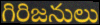
గిరిజనులు